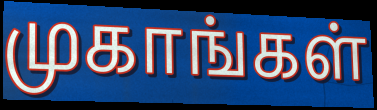
முகாங்கள்